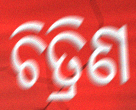
ଚିତ୍ରିଣ